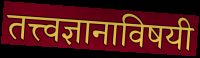
तत्त्वज्ञानाविषयी